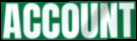
ACCOUNT